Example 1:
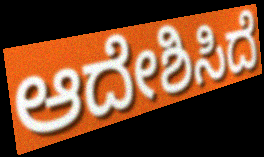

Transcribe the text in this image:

ಆದೇಶಿಸಿದೆ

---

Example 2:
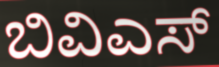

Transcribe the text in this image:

ಬಿವಿಎಸ್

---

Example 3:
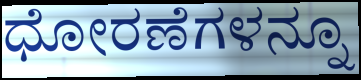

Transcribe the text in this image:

ಧೋರಣೆಗಳನ್ನೂ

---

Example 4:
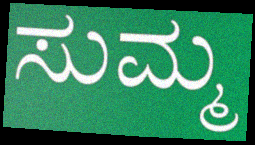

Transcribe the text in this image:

ಸುಮ್ಮ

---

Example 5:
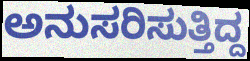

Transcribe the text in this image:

ಅನುಸರಿಸುತ್ತಿದ್ದ